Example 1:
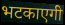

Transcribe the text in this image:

भटकाएगी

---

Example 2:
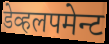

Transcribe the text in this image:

डेव्हलपमेन्ट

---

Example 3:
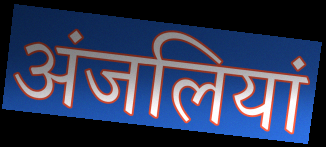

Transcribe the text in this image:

अंजलियां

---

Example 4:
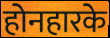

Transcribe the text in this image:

होनहारके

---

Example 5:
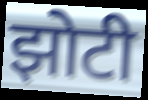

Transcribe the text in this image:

झोटी